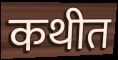
कथीत